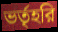
ভর্তৃহরি